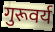
गुरूवर्य